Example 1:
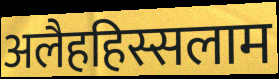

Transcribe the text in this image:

अलैहहिस्सलाम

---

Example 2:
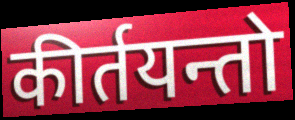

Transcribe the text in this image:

कीर्तयन्तो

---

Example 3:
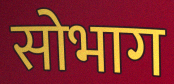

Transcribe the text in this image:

सोभाग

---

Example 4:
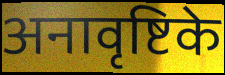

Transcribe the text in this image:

अनावृष्टिके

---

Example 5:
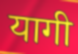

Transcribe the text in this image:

यागी